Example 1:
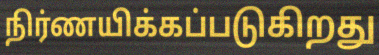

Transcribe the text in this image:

நிர்ணயிக்கப்படுகிறது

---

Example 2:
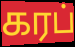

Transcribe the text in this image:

கரப்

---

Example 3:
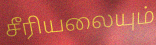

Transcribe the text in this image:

சீரியலையும்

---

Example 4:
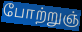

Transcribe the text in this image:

போற்றுஞ்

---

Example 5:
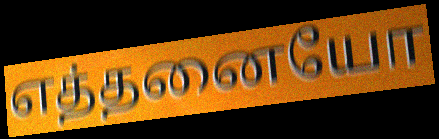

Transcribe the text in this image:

எத்தனையோ